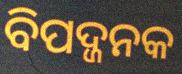
ବିପଦ୍ଜନକ